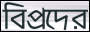
বিপ্রদের